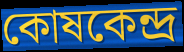
কোষকেন্দ্ৰ